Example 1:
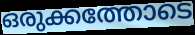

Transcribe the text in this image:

ഒരുക്കത്തോടെ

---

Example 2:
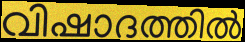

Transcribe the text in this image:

വിഷാദത്തിൽ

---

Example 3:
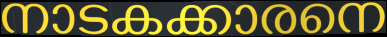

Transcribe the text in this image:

നാടകക്കാരനെ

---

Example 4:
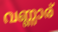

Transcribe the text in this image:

വണ്ണാര്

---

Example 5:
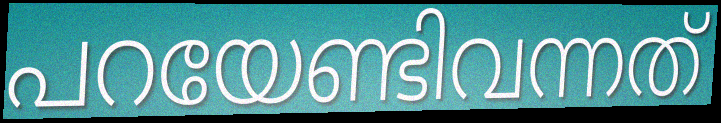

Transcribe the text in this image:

പറയേണ്ടിവന്നത്